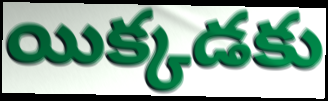
యిక్కడకు